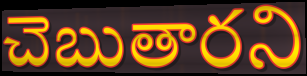
చెబుతారని